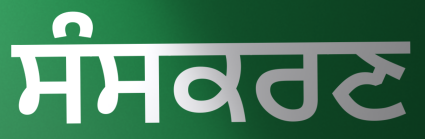
ਸੰਸਕਰਣ